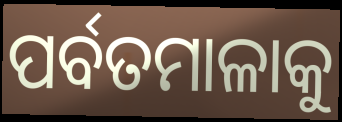
ପର୍ବତମାଳାକୁ